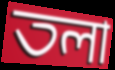
তলা